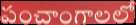
పంచాంగాలలో